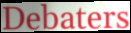
Debaters